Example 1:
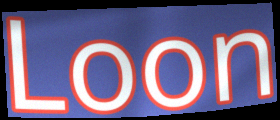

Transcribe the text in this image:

Loon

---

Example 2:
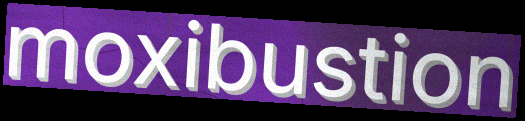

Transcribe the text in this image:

moxibustion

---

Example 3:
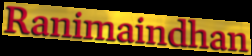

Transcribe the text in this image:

Ranimaindhan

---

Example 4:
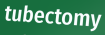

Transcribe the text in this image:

tubectomy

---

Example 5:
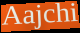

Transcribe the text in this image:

Aajchi